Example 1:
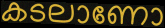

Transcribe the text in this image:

കടലാണോ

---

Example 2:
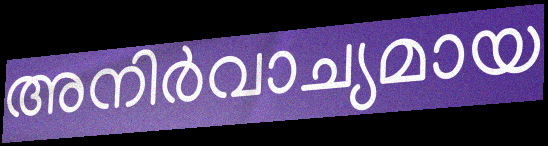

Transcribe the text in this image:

അനിർവാച്യമായ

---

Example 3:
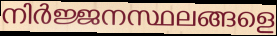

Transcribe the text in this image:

നിർജ്ജനസ്ഥലങ്ങളെ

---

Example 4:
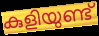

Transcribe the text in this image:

കുളിയുണ്ട്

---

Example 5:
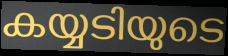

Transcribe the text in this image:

കയ്യടിയുടെ